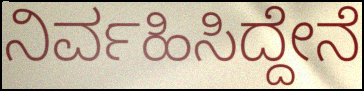
ನಿರ್ವಹಿಸಿದ್ದೇನೆ